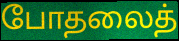
போதலைத்